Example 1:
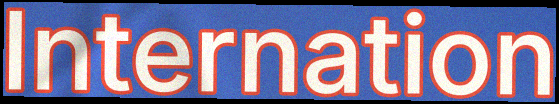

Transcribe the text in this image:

Internation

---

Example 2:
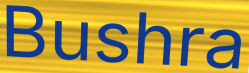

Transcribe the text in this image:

Bushra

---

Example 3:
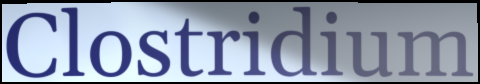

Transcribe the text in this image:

Clostridium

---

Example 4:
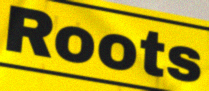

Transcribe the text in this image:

Roots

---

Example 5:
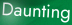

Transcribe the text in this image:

Daunting